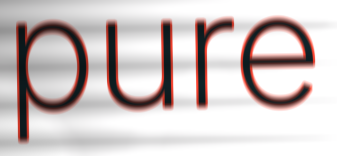
pure